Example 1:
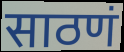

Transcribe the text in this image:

साठणं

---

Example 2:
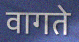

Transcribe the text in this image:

वागते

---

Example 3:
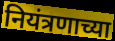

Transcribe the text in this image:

नियंत्रणाच्या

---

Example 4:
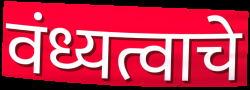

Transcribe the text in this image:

वंध्यत्वाचे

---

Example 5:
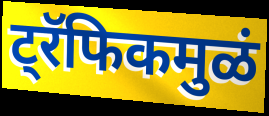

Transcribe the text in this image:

ट्रॅफिकमुळं